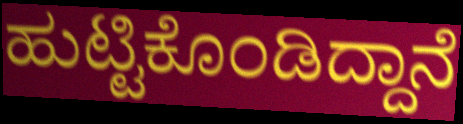
ಹುಟ್ಟಿಕೊಂಡಿದ್ದಾನೆ